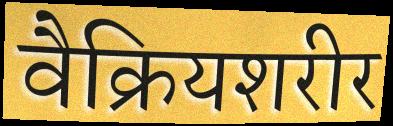
वैक्रियशरीर